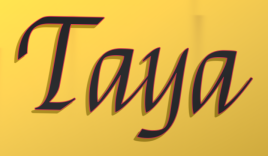
Taya